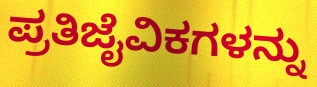
ಪ್ರತಿಜೈವಿಕಗಳನ್ನು